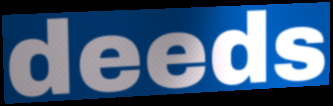
deeds